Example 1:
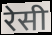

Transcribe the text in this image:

रेसी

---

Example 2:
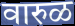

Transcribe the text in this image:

वारुळ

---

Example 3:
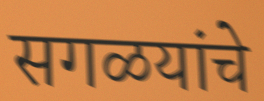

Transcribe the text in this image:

सगळयांचे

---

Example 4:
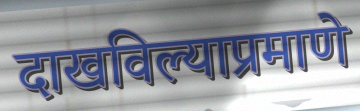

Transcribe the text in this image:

दाखविल्याप्रमाणे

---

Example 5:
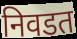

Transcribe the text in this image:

निवडत